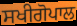
ਸਖੀਗੋਪਾਲ